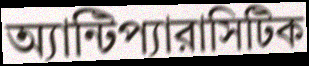
অ্যান্টিপ্যারাসিটিক